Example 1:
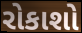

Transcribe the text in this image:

રોકાશો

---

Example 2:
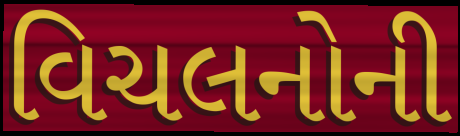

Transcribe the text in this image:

વિચલનોની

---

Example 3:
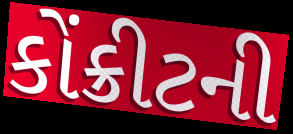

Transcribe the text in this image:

કોંક્રીટની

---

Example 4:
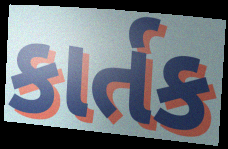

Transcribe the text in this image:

કાર્તક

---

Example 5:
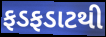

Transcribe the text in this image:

ફડફડાટથી